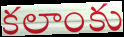
కలాంకు